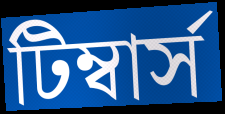
টিম্বার্স